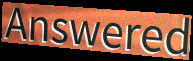
Answered